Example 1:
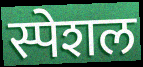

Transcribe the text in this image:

स्पेशल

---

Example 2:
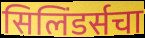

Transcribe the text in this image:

सिलिंडर्सचा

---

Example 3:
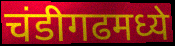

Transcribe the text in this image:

चंडीगढमध्ये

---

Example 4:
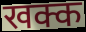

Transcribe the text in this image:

खक्क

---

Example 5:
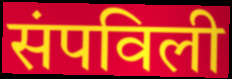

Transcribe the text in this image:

संपविली